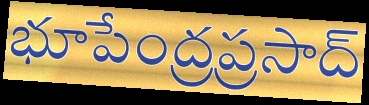
భూపేంద్రప్రసాద్